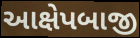
આક્ષેપબાજી